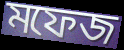
মফেজ